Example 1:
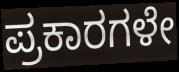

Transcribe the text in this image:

ಪ್ರಕಾರಗಳೇ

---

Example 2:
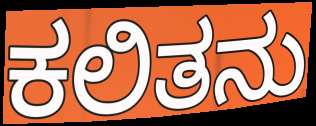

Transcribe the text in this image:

ಕಲಿತನು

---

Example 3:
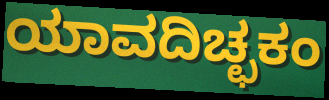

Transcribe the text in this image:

ಯಾವದಿಚ್ಛಕಂ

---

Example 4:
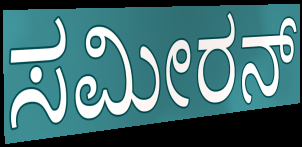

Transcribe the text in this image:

ಸಮೀರನ್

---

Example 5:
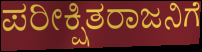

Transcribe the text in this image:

ಪರೀಕ್ಷಿತರಾಜನಿಗೆ